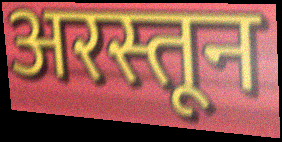
अरस्तून